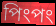
পিংপং